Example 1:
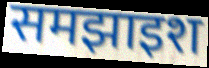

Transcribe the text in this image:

समझाइश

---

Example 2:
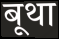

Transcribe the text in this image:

बूथा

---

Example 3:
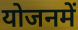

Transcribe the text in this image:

योजनमें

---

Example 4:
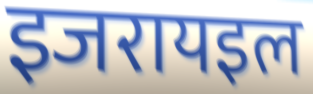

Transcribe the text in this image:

इजरायइल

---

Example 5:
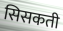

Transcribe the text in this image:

सिसकती